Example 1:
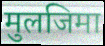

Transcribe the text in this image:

मुलजिमा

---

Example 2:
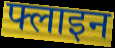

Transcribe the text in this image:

फ्लाइन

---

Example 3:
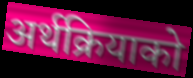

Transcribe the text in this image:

अर्थक्रियाको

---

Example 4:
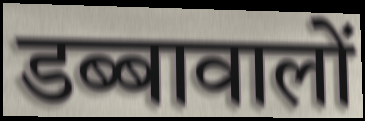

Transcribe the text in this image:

डब्बावालों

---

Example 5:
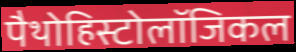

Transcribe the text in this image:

पैथोहिस्टोलॉजिकल